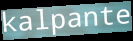
kalpante